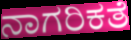
ನಾಗರಿಕತೆ